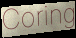
Coring